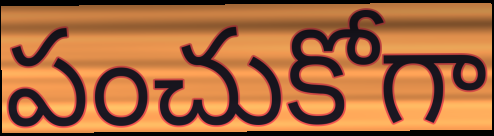
పంచుకోగా